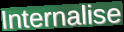
Internalise